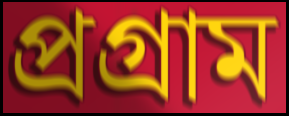
প্ৰগ্ৰাম